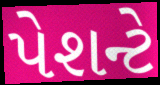
પેશન્ટે